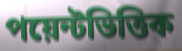
পয়েন্টভিত্তিক